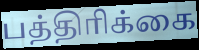
பத்திரிக்கை